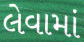
લેવામાં